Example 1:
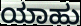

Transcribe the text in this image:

ಯಾಹು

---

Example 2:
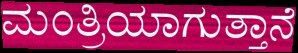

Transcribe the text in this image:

ಮಂತ್ರಿಯಾಗುತ್ತಾನೆ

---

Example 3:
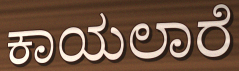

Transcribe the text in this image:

ಕಾಯಲಾರೆ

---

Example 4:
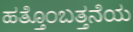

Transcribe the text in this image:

ಹತ್ತೊಂಬತ್ತನೆಯ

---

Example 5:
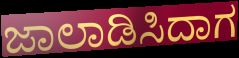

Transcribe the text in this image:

ಜಾಲಾಡಿಸಿದಾಗ